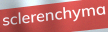
sclerenchyma